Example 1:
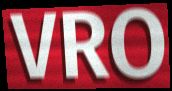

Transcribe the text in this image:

VRO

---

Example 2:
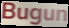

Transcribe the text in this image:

Bugun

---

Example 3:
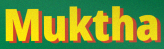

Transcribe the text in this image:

Muktha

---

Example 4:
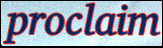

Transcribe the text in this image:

proclaim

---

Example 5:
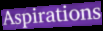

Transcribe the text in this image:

Aspirations